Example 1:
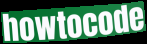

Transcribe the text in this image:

howtocode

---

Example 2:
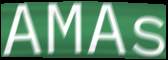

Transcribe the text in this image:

AMAs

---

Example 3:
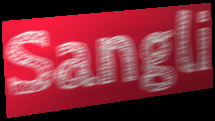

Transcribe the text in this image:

Sangli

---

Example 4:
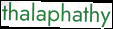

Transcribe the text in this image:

thalaphathy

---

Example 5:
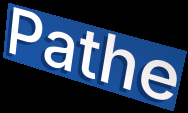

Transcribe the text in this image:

Pathe